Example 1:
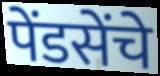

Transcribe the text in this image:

पेंडसेंचे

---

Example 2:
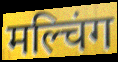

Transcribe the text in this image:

मल्चिंग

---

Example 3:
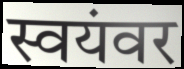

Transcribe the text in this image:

स्वयंवर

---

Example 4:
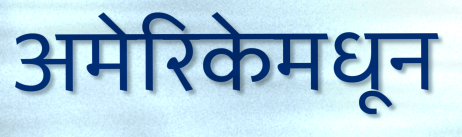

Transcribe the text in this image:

अमेरिकेमधून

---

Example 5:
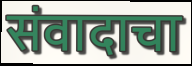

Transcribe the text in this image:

संवादाचा